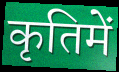
कृतिमें